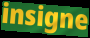
insigne